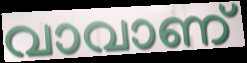
വാവാണ്